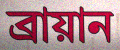
ব্রায়ান